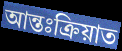
আন্তঃক্ৰিয়াত